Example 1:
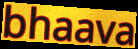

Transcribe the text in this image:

bhaava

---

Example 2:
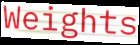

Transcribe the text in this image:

Weights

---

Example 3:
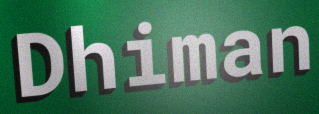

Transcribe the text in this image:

Dhiman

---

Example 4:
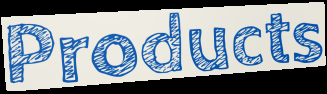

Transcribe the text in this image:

Products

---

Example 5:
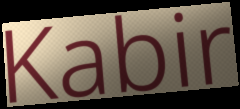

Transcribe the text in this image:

Kabir